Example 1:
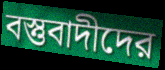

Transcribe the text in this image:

বস্তুবাদীদের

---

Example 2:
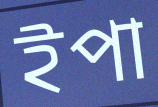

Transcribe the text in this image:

ইপা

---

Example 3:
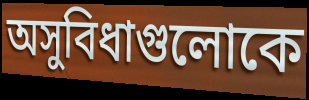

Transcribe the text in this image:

অসুবিধাগুলোকে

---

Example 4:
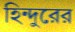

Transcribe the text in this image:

হিন্দুরের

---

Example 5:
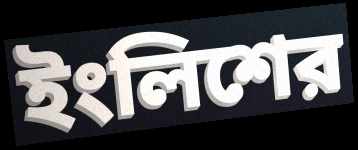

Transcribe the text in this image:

ইংলিশের